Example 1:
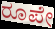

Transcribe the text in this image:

ರೂಪೇ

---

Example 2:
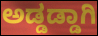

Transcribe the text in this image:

ಅಡ್ಡಡ್ಡಾಗಿ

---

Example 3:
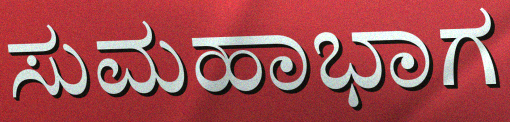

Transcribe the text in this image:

ಸುಮಹಾಭಾಗ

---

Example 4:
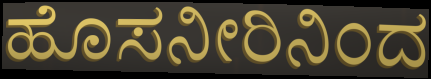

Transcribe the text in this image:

ಹೊಸನೀರಿನಿಂದ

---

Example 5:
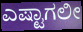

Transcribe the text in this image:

ಎಷ್ಟಾಗಲೀ